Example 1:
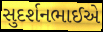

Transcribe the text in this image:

સુદર્શનભાઈએ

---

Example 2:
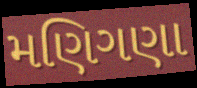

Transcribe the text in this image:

મણિગણા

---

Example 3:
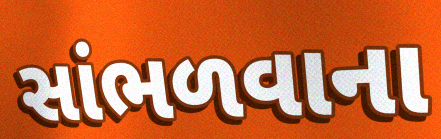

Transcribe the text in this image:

સાંભળવાના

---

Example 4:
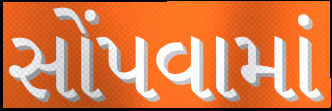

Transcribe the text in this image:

સોંપવામાં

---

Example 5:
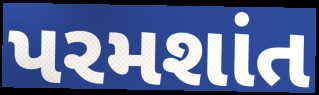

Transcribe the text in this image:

પરમશાંત